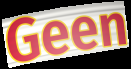
Geen